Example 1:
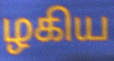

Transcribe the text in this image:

ழகிய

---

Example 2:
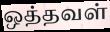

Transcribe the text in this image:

ஒத்தவள்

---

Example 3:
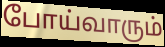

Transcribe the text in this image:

போய்வாரும்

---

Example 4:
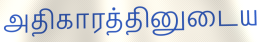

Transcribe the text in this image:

அதிகாரத்தினுடைய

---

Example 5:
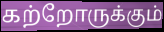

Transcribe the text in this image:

கற்றோருக்கும்